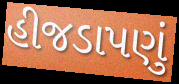
હીજડાપણું